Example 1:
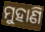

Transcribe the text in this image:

ମୁହାଣି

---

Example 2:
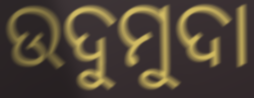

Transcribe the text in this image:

ଉଦୁମୁଦା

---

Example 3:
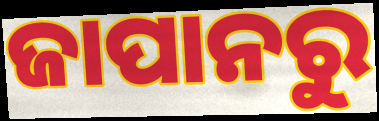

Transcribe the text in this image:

ଜାପାନରୁ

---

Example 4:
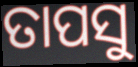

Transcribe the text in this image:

ତାପସୁ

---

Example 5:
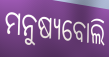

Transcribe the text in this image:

ମନୁଷ୍ୟବୋଲି